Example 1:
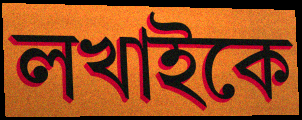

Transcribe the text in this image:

লখাইকে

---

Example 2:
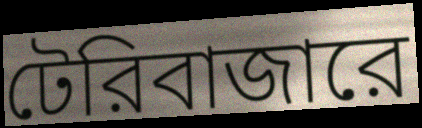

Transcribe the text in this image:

টেরিবাজারে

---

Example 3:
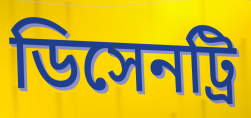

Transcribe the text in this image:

ডিসেনট্রি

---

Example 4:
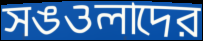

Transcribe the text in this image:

সঙওলাদের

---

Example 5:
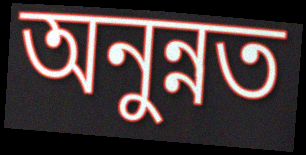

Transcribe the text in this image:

অনুন্নত